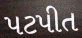
પટપીત